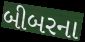
બીબરના